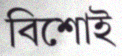
বিশোই